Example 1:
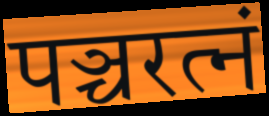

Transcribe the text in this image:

पञ्चरत्नं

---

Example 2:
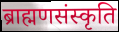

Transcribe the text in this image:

ब्राह्मणसंस्कृति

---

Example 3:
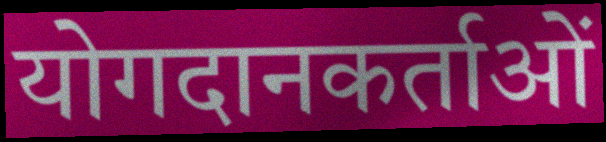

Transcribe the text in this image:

योगदानकर्ताओं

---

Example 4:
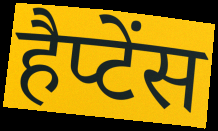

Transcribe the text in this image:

हैप्टेंस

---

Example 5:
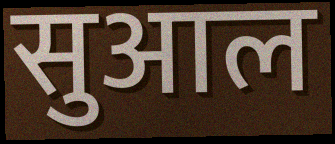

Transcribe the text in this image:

सुआल